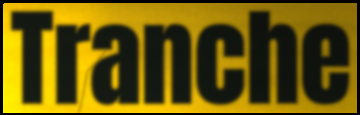
Tranche